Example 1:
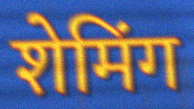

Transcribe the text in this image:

शेमिंग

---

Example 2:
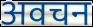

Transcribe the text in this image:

अवचन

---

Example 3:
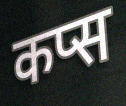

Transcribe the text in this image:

कप्स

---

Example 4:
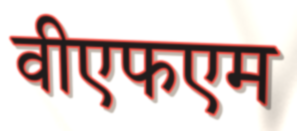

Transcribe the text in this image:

वीएफएम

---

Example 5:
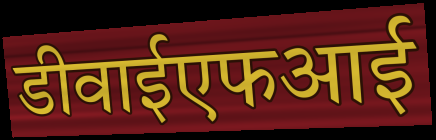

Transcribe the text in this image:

डीवाईएफआई